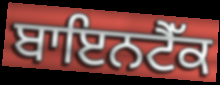
ਬਾਇਨਟੈੱਕ